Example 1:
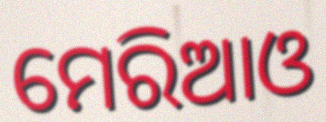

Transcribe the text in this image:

ମେରିଆଓ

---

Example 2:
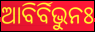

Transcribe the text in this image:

ଆବିର୍ବିଭୁନଃ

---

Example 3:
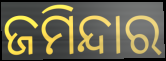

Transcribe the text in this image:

ଜମିନ୍ଦାର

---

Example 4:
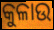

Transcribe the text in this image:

କୁଳାଉ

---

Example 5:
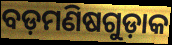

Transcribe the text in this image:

ବଡ଼ମଣିଷଗୁଡ଼ାକ